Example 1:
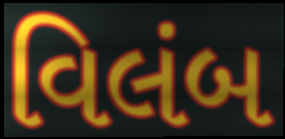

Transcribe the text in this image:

વિલંબ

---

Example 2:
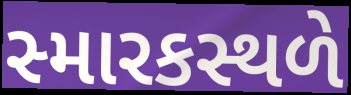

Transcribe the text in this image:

સ્મારકસ્થળે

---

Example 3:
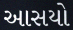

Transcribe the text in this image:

આસયો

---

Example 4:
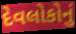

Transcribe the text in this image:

દેવલોકોનું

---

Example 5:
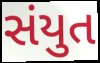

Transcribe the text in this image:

સંયુત